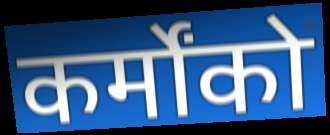
कर्मोंको